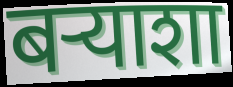
बऱ्याशा